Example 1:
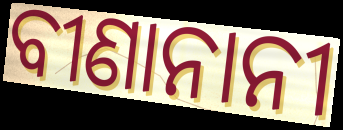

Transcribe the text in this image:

ବୀଣାନାନୀ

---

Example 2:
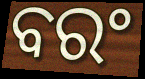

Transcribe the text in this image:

ବରଂ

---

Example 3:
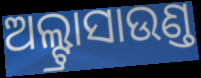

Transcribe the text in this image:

ଅଲ୍ଟ୍ରାସାଉଣ୍ଡ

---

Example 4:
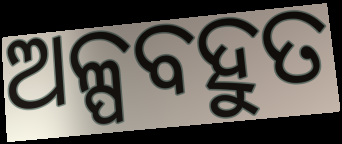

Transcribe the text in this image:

ଅଳ୍ପବହୁତ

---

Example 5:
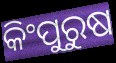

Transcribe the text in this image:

କିଂପୁରୁଷ